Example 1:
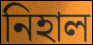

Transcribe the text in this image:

নিহাল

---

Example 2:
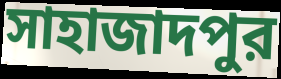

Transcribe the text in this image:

সাহাজাদপুর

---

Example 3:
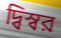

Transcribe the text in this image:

দ্বিস্বর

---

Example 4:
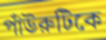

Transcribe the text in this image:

পাঁউরুটিকে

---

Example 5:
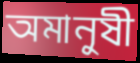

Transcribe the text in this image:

অমানুষী